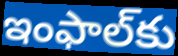
ఇంఫాల్‌కు